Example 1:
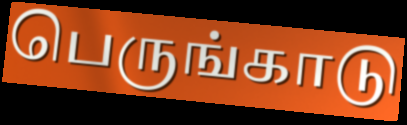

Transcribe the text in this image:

பெருங்காடு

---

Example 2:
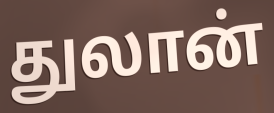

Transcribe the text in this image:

துலான்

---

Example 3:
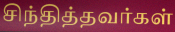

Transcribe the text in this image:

சிந்தித்தவர்கள்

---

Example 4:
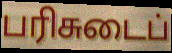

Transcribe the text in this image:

பரிசுடைப்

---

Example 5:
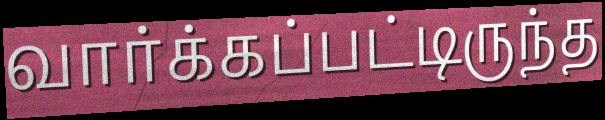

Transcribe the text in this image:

வார்க்கப்பட்டிருந்த